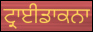
ਟ੍ਰਾਈਡਾਕਨਾ